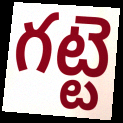
గట్టె